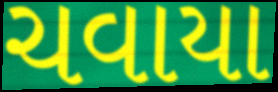
ચવાયા